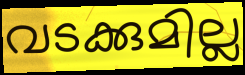
വടക്കുമില്ല